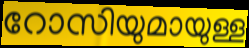
റോസിയുമായുള്ള